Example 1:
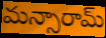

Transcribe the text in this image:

మన్సారామ్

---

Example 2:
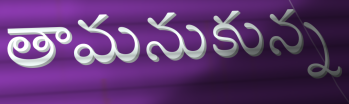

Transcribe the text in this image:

తామనుకున్న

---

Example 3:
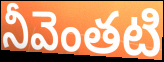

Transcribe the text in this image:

నీవెంతటి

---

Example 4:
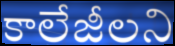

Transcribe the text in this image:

కాలేజీలని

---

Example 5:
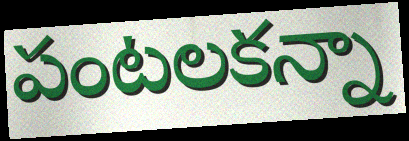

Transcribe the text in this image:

పంటలకన్నా